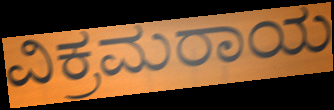
ವಿಕ್ರಮರಾಯ